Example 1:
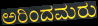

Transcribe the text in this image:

ಅರಿಂದಮರು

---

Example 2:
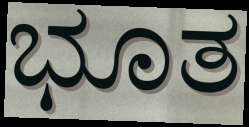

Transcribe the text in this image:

ಭೂತ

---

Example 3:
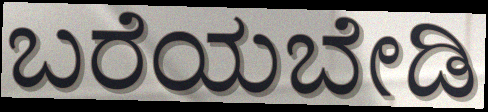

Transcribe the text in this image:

ಬರೆಯಬೇಡಿ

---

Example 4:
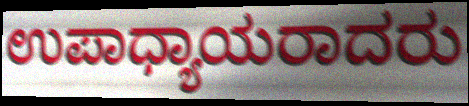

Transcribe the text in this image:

ಉಪಾಧ್ಯಾಯರಾದರು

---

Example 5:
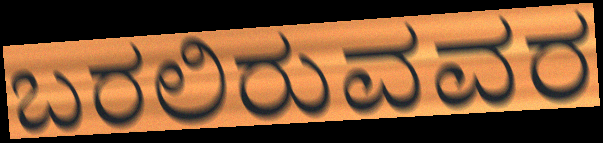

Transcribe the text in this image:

ಬರಲಿರುವವರ